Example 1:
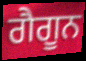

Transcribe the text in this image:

ਗੈਗੂਨ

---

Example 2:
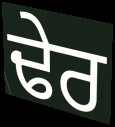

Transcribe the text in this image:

ਢੇਰ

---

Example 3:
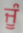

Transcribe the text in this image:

ਜੂੰ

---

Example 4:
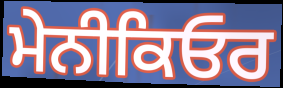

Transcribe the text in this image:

ਮੇਨੀਕਿਓਰ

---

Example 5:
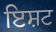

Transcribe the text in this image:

ਇਸ਼ਟ